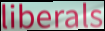
liberals